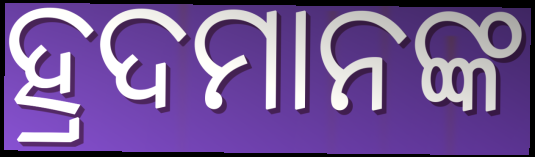
ହ୍ରଦମାନଙ୍କ